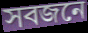
সবজনে